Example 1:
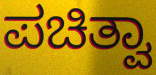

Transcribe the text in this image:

ಪಚಿತ್ವಾ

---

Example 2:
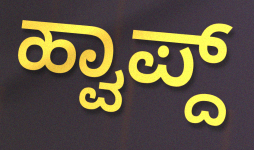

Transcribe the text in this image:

ಹ್ವಾಪ್ದ್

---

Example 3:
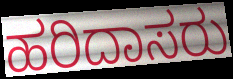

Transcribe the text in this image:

ಹರಿದಾಸರು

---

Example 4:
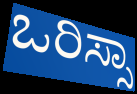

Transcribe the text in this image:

ಒರಿಸ್ಸಾ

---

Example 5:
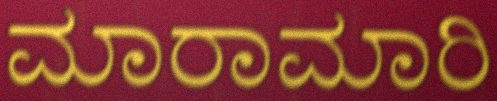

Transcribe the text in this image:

ಮಾರಾಮಾರಿ